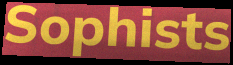
Sophists